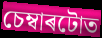
চেম্বাৰটোত